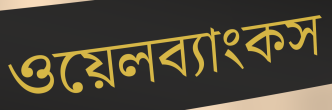
ওয়েলব্যাংকস